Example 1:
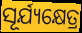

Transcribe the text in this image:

ସୂର୍ଯ୍ୟକ୍ଷେତ୍ର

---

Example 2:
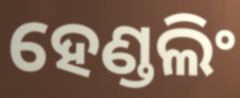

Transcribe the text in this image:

ହେଣ୍ଡଲିଂ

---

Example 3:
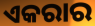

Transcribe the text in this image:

ଏକରାର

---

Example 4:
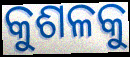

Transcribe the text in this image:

କୁଶଳକୁ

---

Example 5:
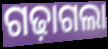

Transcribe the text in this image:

ଗଢ଼ାଗଲା